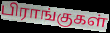
பிராங்குகள்